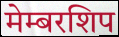
मेम्बरशिप